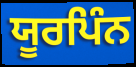
ਯੂਰਪਿੰਨ